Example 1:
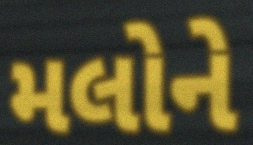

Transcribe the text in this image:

મલોને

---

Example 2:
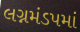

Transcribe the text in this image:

લગ્નમંડપમાં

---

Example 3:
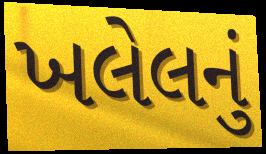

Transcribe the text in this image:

ખલેલનું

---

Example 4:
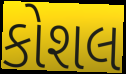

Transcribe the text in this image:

કોશલ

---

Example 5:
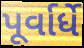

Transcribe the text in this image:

પૂર્વાર્ધે